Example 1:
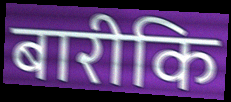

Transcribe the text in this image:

बारीकि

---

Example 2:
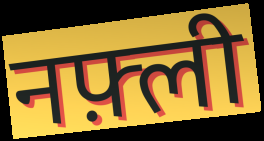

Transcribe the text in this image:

नफ़्ली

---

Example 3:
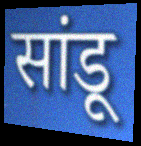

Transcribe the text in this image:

सांडू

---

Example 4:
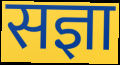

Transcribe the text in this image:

सज्ञा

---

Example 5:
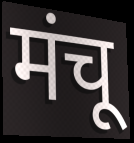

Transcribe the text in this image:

मंचू